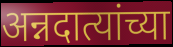
अन्नदात्यांच्या